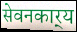
सेवनकार्य